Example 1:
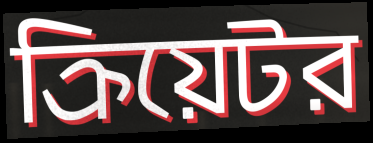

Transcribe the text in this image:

ক্রিয়েটর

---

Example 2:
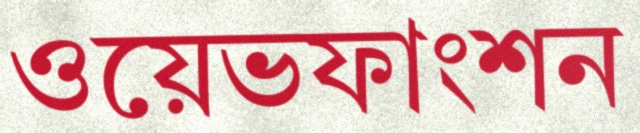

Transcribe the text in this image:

ওয়েভফাংশন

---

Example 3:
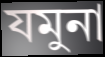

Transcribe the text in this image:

যমুনা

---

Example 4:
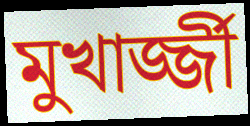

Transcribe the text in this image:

মুখার্জ্জী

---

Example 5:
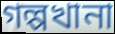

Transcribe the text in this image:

গল্পখানা